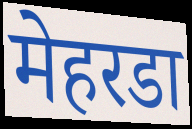
मेहरडा